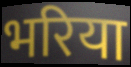
भरिया